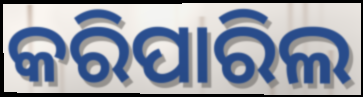
କରିପାରିଲ